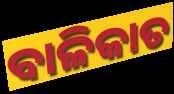
ବାଳିକାତ